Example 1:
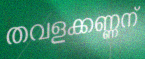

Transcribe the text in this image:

തവളക്കണ്ണന്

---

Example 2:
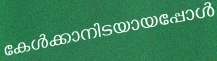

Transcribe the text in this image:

കേൾക്കാനിടയായപ്പോൾ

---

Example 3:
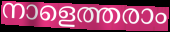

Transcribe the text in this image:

നാളെത്തരാം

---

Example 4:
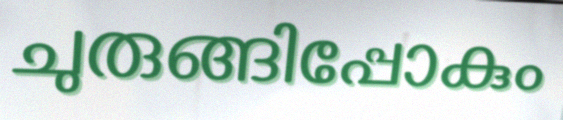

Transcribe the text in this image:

ചുരുങ്ങിപ്പോകും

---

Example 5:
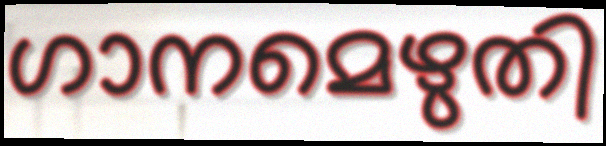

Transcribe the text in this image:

ഗാനമെഴുതി